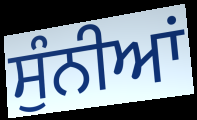
ਸੁੰਨੀਆਂ